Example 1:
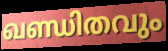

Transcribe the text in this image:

ഖണ്ഡിതവും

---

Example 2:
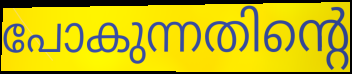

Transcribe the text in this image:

പോകുന്നതിന്റെ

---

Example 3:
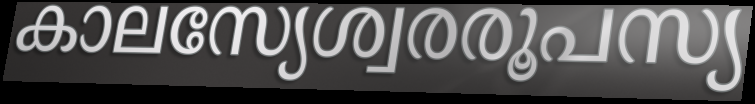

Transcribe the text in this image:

കാലസ്യേശ്വരരൂപസ്യ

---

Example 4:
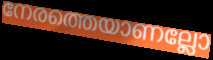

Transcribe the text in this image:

നേരത്തെയാണല്ലോ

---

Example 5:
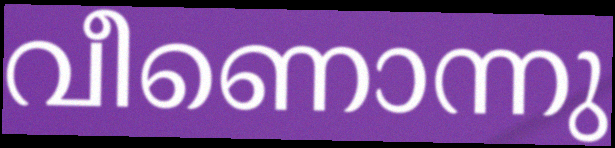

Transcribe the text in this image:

വീണൊന്നു